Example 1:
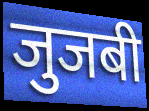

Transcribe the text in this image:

जुजबी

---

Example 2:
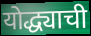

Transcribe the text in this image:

योद्ध्याची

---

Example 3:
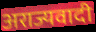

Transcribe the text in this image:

अराज्यवादी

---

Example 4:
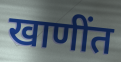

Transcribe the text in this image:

खाणींत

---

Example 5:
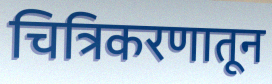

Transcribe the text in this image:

चित्रिकरणातून